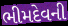
ભીમદેવની